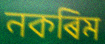
নকৰিম